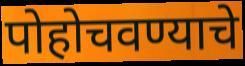
पोहोचवण्याचे